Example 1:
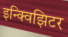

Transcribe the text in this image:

इन्क्विझिटर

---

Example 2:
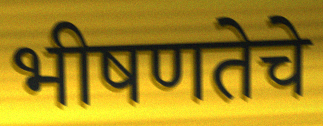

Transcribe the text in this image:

भीषणतेचे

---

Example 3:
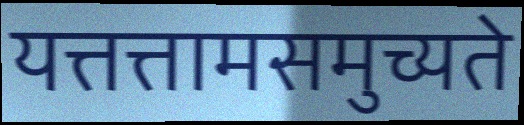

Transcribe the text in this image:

यत्तत्तामसमुच्यते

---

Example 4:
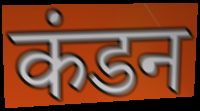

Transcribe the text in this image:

कंडन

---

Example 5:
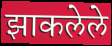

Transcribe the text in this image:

झाकलेले